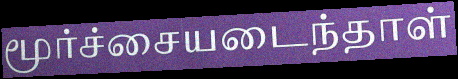
மூர்ச்சையடைந்தாள்